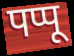
पप्पू